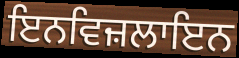
ਇਨਵਿਜ਼ਲਾਇਨ